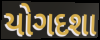
યોગદશા